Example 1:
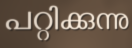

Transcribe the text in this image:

പറ്റിക്കുന്നു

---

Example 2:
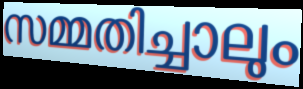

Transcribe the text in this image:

സമ്മതിച്ചാലും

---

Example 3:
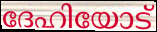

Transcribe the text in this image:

ദേഹിയോട്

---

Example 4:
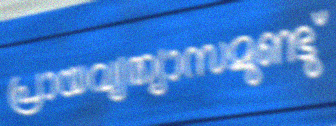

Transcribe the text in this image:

പ്രായവ്യത്യാസമുണ്ടു്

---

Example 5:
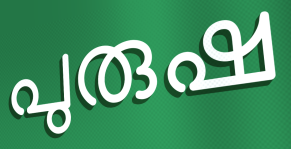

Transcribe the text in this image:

പുരുഷ